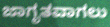
ಜಾಗೃತವಾಗಲು